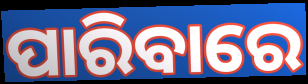
ପାରିବାରେ